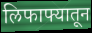
लिफाफ्यातून